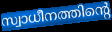
സ്വാധീനത്തിന്റെ